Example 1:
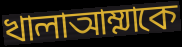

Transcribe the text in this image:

খালাআম্মাকে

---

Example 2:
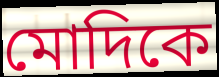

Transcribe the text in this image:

মোদিকে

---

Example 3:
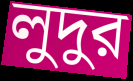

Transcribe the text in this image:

লুদুর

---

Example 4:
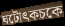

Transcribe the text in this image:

ঘটোৎকচকে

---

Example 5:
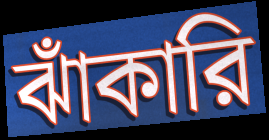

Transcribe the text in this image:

ঝাঁকারি